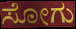
ಸೋಗು